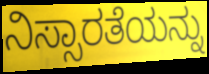
ನಿಸ್ಸಾರತೆಯನ್ನು